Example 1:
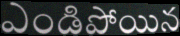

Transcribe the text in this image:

ఎండిపోయిన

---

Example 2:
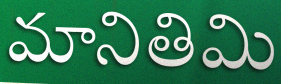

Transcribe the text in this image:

మానితిమి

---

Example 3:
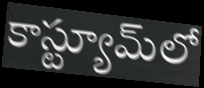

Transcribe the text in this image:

కాస్ట్యూమ్‌లో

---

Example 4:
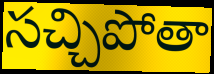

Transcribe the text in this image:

సచ్చిపోతా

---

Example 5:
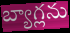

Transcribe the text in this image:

బ్యాగ్లను